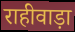
राहीवाड़ा